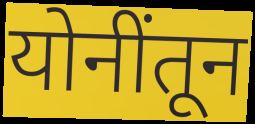
योनींतून